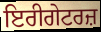
ਇਰੀਗੇਟਰਜ਼